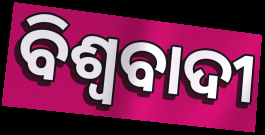
ବିଶ୍ଵବାଦୀ